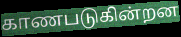
காணபடுகின்றன